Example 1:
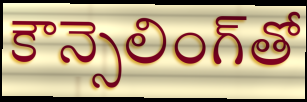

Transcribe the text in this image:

కౌన్సెలింగ్‌తో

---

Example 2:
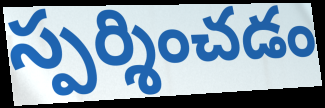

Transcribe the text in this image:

స్పర్శించడం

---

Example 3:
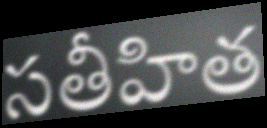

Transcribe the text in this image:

సతీహిత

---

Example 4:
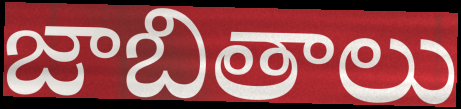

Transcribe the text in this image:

జాబితాలు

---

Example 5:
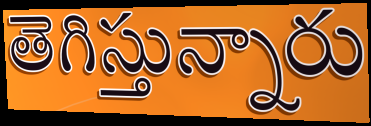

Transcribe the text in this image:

తెగిస్తున్నారు